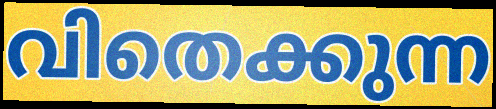
വിതെക്കുന്ന